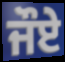
ਜੌਏ